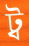
ট্ব